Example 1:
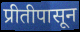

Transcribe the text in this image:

प्रीतीपासून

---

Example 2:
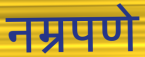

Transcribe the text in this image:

नम्रपणे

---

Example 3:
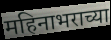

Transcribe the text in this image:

महिनाभराच्या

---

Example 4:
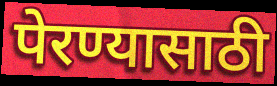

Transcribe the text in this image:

पेरण्यासाठी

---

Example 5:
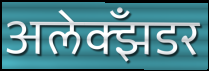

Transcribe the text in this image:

अलेक्झँडर